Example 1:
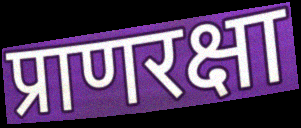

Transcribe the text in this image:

प्राणरक्षा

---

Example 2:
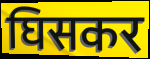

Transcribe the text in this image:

घिसकर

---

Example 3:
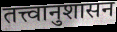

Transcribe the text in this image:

तत्त्वानुशासन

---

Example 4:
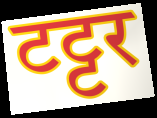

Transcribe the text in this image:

टट्टर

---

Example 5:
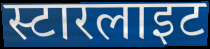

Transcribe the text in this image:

स्टारलाइट